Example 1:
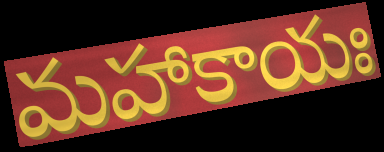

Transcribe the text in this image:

మహాకాయః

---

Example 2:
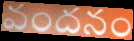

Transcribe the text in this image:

వందనం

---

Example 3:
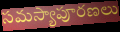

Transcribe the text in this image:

సమస్యాపూరణలు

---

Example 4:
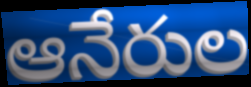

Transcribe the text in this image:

ఆనేరుల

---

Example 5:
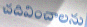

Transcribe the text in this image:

చదివించాలను